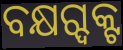
ବକ୍ଷଗ୍ଦକ୍ଟ